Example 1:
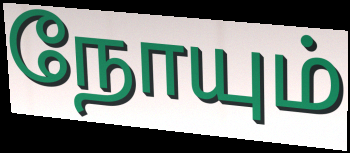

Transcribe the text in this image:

நோயும்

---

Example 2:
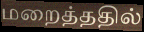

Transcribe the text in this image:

மறைத்ததில்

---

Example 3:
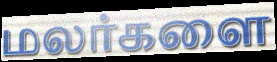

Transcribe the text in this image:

மலர்களை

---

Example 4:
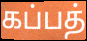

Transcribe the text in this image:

கப்பத்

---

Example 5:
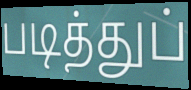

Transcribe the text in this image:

படித்துப்